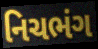
નિચભંગ